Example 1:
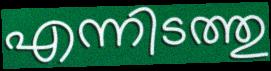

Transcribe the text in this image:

എന്നിടത്തു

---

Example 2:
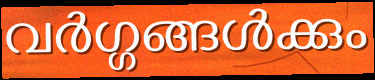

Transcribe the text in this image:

വർഗ്ഗങ്ങൾക്കും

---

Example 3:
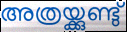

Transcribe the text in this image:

അത്രയ്ക്കുണ്ടു്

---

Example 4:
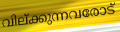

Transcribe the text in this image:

വില്ക്കുന്നവരോട്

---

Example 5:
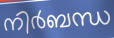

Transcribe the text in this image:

നിർബന്ധ